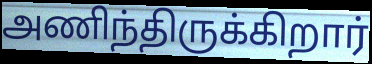
அணிந்திருக்கிறார்